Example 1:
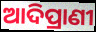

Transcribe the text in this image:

ଆଦିପ୍ରାଣୀ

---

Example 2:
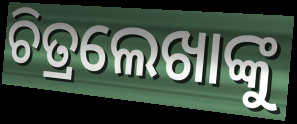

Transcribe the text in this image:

ଚିତ୍ରଲେଖାଙ୍କୁ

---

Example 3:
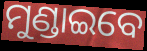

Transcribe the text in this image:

ମୁଣ୍ଡାଇବେ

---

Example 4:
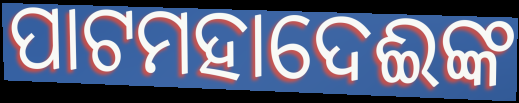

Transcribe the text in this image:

ପାଟମହାଦେଈଙ୍କ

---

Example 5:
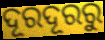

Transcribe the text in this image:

ଦୂରଦୂରରୁ